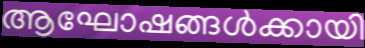
ആഘോഷങ്ങൾക്കായി